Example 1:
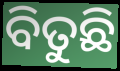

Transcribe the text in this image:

ବିତୁଛି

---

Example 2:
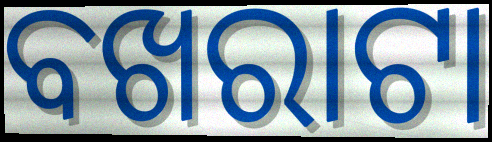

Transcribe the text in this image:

ବଖରାଟା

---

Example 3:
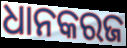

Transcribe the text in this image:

ଧାନକରଜ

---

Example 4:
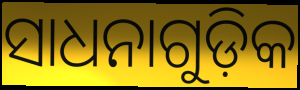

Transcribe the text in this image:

ସାଧନାଗୁଡ଼ିକ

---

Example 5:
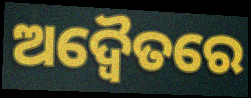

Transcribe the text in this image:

ଅଦ୍ୱୈତରେ